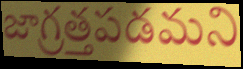
జాగ్రత్తపడమని